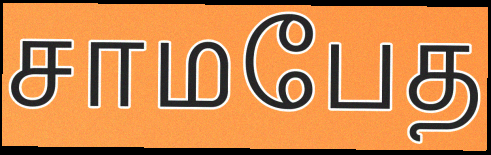
சாமபேத